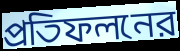
প্রতিফলনের